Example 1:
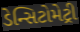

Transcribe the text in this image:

ડેન્સિટોમેટ્રી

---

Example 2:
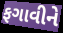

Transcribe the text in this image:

ફગાવીને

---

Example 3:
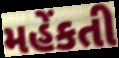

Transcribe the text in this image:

મહેંકતી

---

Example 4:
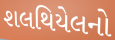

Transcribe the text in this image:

શલથિયેલનો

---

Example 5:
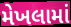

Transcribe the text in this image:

મેખલામાં